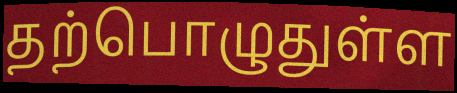
தற்பொழுதுள்ள